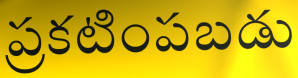
ప్రకటింపబడు